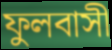
ফুলবাসী